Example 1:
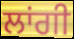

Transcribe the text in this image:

ਲਾਂਗੀ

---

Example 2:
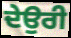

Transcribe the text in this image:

ਦੇਉਰੀ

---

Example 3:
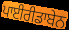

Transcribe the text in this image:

ਪਾਈਰੀਡਾਬੇਨ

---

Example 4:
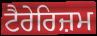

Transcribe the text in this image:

ਟੈਰੇਰਿਜ਼ਮ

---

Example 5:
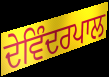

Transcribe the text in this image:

ਦੇਵਿੰਦਰਪਾਲ